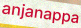
anjanappa